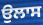
ਉਲਾਸ